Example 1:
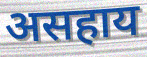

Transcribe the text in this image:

असहाय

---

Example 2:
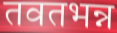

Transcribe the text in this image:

तवतभन्न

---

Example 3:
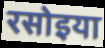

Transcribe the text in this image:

रसोइया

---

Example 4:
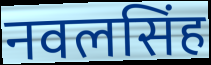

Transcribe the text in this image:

नवलसिंह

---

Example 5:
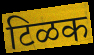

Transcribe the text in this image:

टिळक